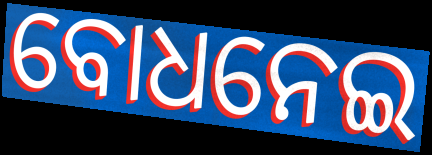
ବୋଧନେଇ